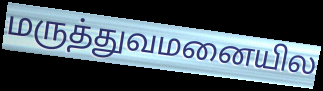
மருத்துவமனையில